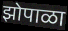
झोपाळा